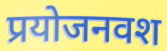
प्रयोजनवश